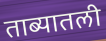
ताब्यातली